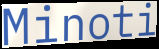
Minoti